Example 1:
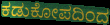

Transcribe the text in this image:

ಕಡುಕೋಪದಿಂದ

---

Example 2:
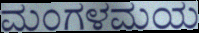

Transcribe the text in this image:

ಮಂಗಳಮಯ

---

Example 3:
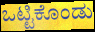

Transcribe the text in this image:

ಒಟ್ಟಿಕೊಂಡು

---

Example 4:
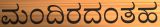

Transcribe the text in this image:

ಮಂದಿರದಂತಹ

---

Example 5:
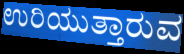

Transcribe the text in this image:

ಉರಿಯುತ್ತಾರುವ